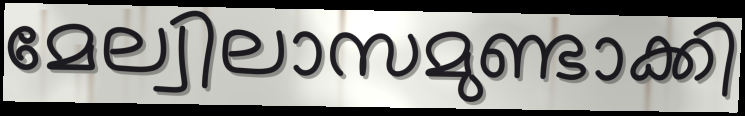
മേല്വിലാസമുണ്ടാക്കി